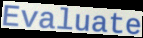
Evaluate